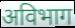
अविभाग